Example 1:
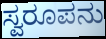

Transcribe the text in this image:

ಸ್ವರೂಪನು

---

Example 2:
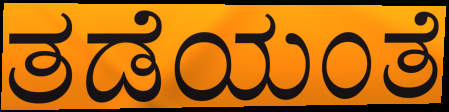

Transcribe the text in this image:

ತಡೆಯಂತೆ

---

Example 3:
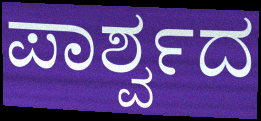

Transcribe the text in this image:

ಪಾರ್ಶ್ವದ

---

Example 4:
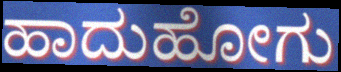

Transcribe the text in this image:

ಹಾದುಹೋಗು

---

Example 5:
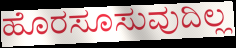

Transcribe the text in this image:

ಹೊರಸೂಸುವುದಿಲ್ಲ